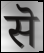
सॆ